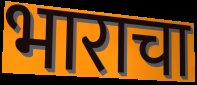
भाराचा